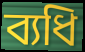
ব্যধি